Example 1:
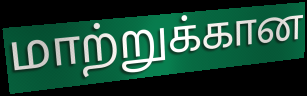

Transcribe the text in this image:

மாற்றுக்கான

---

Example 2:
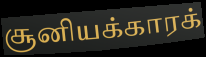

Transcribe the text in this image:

சூனியக்காரக்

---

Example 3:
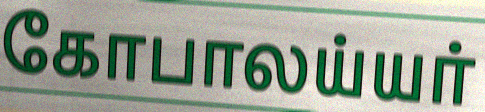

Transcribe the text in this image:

கோபாலய்யர்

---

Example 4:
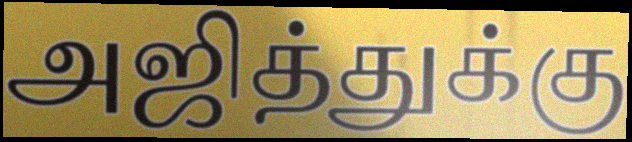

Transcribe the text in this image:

அஜித்துக்கு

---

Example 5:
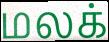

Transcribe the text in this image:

மலக்